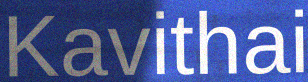
Kavithai